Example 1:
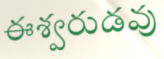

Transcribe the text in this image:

ఈశ్వరుడవు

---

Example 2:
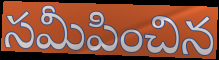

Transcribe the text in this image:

సమీపించిన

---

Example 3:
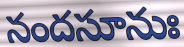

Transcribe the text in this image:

నందసూనుః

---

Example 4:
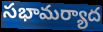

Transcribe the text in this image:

సభామర్యాద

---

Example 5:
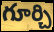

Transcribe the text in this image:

గూర్చి